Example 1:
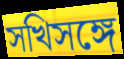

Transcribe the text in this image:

সখিসঙ্গে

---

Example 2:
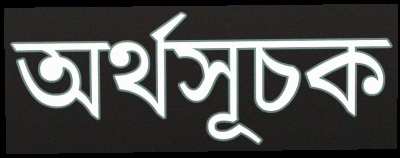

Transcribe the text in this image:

অর্থসূচক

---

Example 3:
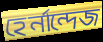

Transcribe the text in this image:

হের্নান্দেজ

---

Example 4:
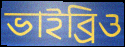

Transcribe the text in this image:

ভাইব্রিও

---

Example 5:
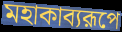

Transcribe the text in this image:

মহাকাব্যরূপে